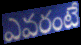
ఎవరంటే